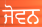
ਜੋਵਨ